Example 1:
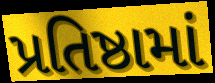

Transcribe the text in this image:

પ્રતિષ્ઠામાં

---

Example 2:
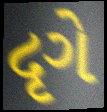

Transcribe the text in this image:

દૃગે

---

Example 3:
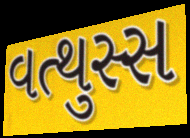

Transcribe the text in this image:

વત્થુસ્સ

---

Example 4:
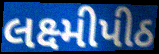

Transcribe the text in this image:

લક્ષ્મીપીઠ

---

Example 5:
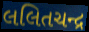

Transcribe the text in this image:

લલિતચન્દ્ર